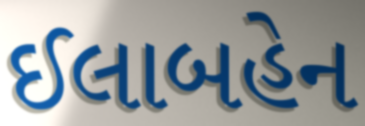
ઈલાબહેન